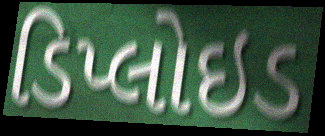
ડિપ્લોઇડ